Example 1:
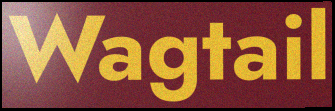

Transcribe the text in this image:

Wagtail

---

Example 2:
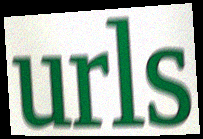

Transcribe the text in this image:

urls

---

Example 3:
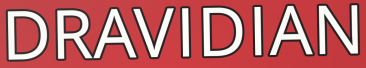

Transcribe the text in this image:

DRAVIDIAN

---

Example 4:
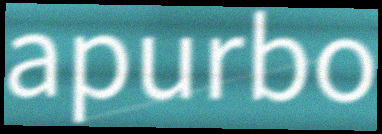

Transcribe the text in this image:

apurbo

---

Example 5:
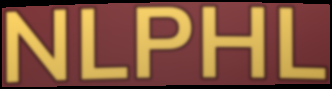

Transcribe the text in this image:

NLPHL